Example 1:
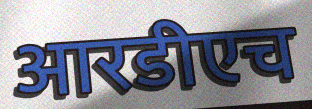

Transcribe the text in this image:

आरडीएच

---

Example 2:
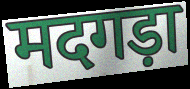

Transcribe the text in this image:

मदगड़ा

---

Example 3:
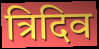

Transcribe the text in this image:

त्रिदिव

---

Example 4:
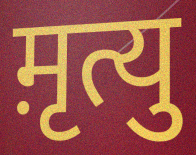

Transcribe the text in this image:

म़ृत्यु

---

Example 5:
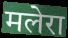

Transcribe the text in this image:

मलेरा